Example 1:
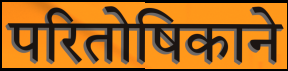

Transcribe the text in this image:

परितोषिकाने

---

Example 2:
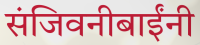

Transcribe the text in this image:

संजिवनीबाईंनी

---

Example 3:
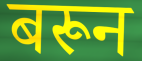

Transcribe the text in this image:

बरून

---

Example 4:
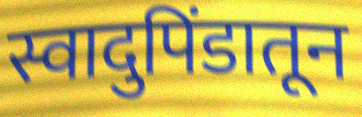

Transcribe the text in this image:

स्वादुपिंडातून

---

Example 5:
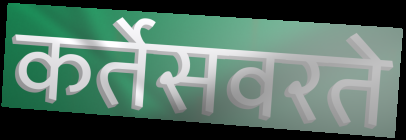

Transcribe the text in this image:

कर्तेसवरते